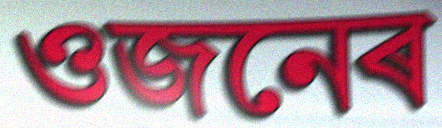
ওজনেৰ